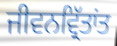
ਜੀਵਨਵ੍ਰਿੱਤਾਂਤ